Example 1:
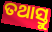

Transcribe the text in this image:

ତଥାସ୍ତୁ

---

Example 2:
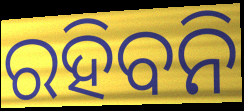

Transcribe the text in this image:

ରହିବନି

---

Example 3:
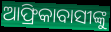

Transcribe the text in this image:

ଆଫ୍ରିକାବାସୀଙ୍କୁ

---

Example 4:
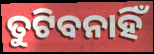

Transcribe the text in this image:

ତୁଟିବନାହିଁ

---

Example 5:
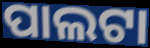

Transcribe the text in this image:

ପାଲଟା